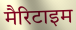
मैरिटाइम